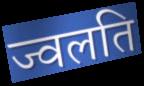
ज्वलति